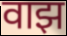
वाझ